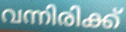
വന്നിരിക്ക്